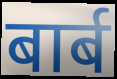
बार्ब